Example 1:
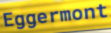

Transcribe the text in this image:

Eggermont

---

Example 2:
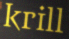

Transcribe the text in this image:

krill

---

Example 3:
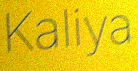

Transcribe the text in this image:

Kaliya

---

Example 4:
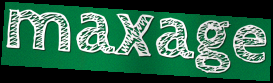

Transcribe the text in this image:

maxage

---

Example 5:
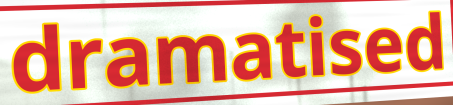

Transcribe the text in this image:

dramatised